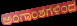
ಅಂಗಾಂಶಗಳಿಂದ